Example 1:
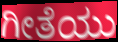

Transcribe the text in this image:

ಗೀತೆಯು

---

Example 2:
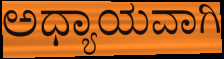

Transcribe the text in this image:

ಅಧ್ಯಾಯವಾಗಿ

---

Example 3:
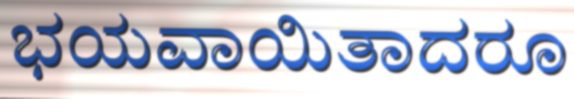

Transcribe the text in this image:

ಭಯವಾಯಿತಾದರೂ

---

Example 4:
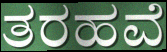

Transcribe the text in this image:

ತರಹವೆ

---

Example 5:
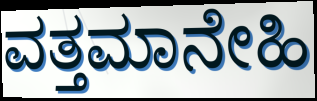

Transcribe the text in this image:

ವತ್ತಮಾನೇಹಿ